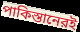
পাকিস্তানেরই